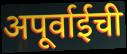
अपूर्वाईची